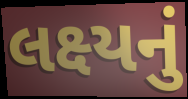
લક્ષ્યનું